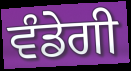
ਵੰਡੇਗੀ